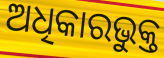
ଅଧିକାରଭୁକ୍ତ